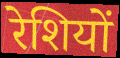
रेशियों